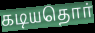
கடியதொர்